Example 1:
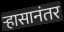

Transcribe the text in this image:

ऱ्हासानंतर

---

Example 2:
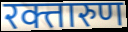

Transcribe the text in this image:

रक्तारुण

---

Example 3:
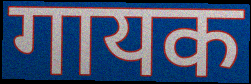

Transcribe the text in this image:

गायक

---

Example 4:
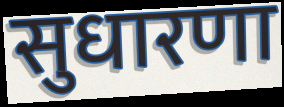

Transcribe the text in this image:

सुधारणा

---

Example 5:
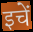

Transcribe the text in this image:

इचें